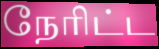
நேரிட்ட